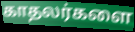
காதலர்களை